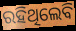
ରହିଥିଲେବି